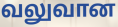
வலுவான